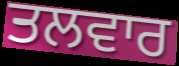
ਤਲਵਾਰ